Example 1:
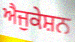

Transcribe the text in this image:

ਐਜੁਕੇਸ਼ਨ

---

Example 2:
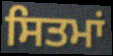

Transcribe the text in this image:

ਸਿਤਮਾਂ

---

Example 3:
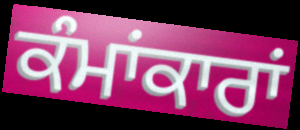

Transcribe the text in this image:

ਕੰਮਾਂਕਾਰਾਂ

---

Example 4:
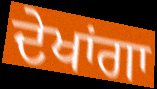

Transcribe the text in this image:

ਦੇਖਾਂਗਾ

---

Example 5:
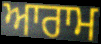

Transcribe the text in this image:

ਆਰਾਮ